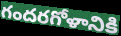
గందరగోళానికి